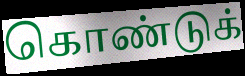
கொண்டுக்